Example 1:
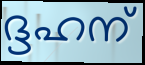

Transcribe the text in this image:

ദ്ദഹന്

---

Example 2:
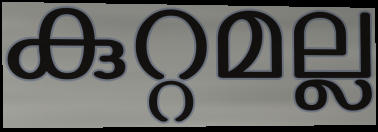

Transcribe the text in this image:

കുറ്റമല്ല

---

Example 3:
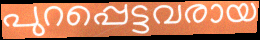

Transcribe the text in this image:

പുറപ്പെട്ടവരായ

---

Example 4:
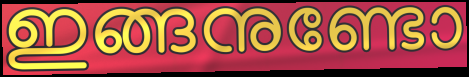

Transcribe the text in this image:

ഇങ്ങനുണ്ടോ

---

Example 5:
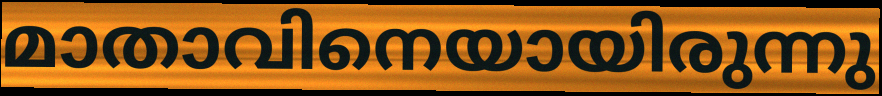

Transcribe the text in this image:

മാതാവിനെയായിരുന്നു